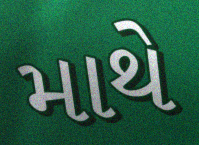
માથે